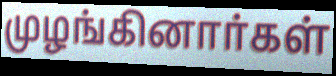
முழங்கினார்கள்